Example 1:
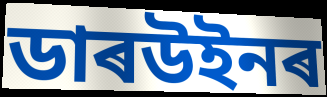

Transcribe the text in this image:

ডাৰউইনৰ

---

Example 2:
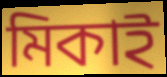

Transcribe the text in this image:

মিকাই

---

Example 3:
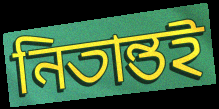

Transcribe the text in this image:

নিতান্তই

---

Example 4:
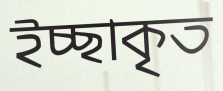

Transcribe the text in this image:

ইচ্ছাকৃত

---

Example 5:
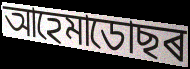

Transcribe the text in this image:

আহেমাডোছৰ